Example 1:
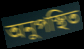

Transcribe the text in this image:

অনুপস্থিত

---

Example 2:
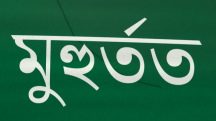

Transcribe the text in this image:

মুহুৰ্তত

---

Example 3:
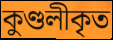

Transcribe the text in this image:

কুণ্ডলীকৃত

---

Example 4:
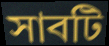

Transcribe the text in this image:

সাবটি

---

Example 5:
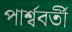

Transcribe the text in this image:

পাৰ্শ্ববৰ্তী